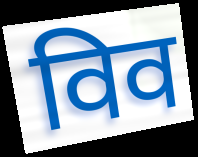
विव